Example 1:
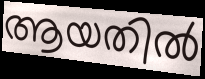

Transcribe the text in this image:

ആയതിൽ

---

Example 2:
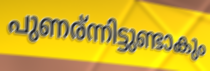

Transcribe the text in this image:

പുണര്ന്നിട്ടുണ്ടാകും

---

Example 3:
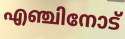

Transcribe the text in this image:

എഞ്ചിനോട്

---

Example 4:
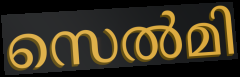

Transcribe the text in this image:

സെൽമി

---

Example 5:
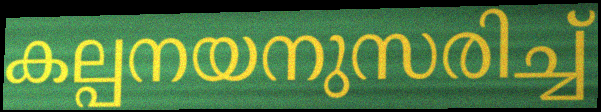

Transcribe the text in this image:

കല്പനയനുസരിച്ച്